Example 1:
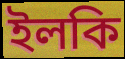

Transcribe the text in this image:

ইলকি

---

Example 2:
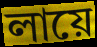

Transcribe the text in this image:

লায়ে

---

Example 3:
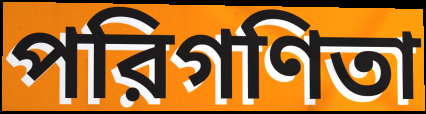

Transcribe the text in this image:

পরিগণিতা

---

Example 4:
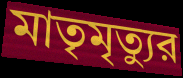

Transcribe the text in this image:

মাতৃমৃত্যুর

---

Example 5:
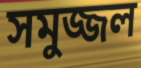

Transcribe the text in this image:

সমুজ্জল